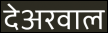
देअरवाल